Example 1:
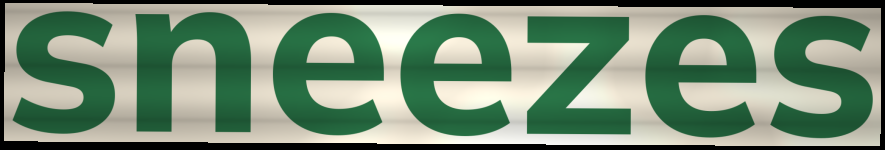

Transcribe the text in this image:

sneezes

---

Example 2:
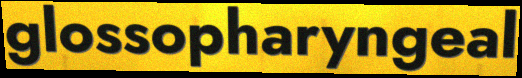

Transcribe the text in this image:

glossopharyngeal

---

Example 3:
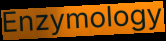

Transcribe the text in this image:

Enzymology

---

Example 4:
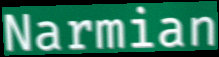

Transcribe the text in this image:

Narmian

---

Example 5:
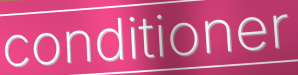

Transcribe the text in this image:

conditioner